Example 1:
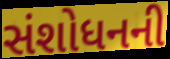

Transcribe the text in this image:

સંશોધનની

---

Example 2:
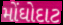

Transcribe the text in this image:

મોંઘોદાટ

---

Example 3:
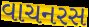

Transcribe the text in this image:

વાચનરસ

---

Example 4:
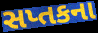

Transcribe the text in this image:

સપ્તકના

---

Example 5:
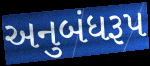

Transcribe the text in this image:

અનુબંધરૂપ